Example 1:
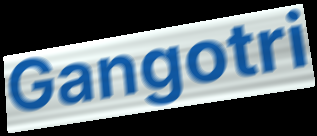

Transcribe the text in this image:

Gangotri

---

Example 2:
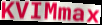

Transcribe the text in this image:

KVIMmax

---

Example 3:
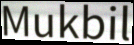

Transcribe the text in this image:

Mukbil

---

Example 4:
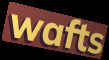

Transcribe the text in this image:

wafts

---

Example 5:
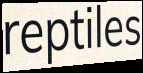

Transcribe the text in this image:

reptiles